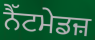
ਨੈੱਟਮੇਡਜ਼